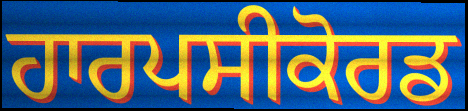
ਹਾਰਪਸੀਕੋਰਡ